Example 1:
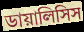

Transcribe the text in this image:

ডায়ালিসিস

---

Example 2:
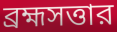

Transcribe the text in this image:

ব্রহ্মসত্তার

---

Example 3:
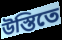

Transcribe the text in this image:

উস্তিতে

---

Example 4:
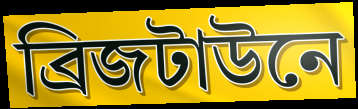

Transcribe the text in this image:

ব্রিজটাউনে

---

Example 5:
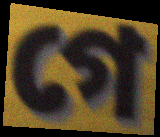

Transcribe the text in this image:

গে